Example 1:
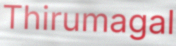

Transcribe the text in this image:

Thirumagal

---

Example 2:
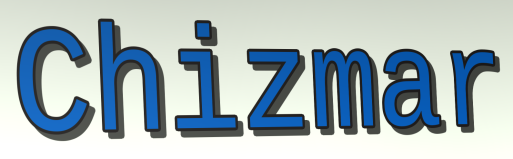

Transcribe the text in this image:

Chizmar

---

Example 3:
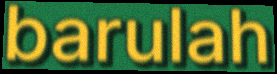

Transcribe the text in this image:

barulah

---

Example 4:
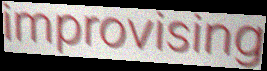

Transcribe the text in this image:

improvising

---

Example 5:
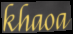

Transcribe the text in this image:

khaoa